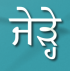
ਜੇੜ੍ਹੇ